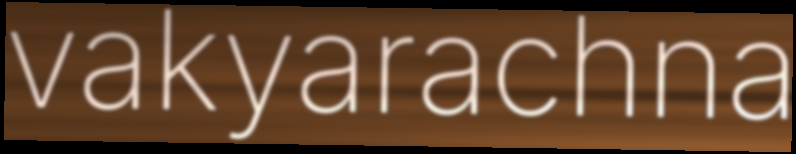
vakyarachna